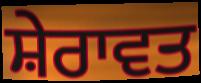
ਸ਼ੇਰਾਵਤ